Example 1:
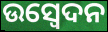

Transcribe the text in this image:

ଉସ୍ୱେଦନ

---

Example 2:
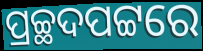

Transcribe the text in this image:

ପ୍ରଚ୍ଛଦପଟ୍ଟରେ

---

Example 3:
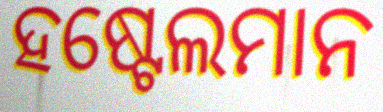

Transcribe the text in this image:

ହଷ୍ଟେଲମାନ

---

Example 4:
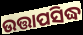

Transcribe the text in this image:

ଉତ୍ତାପସିଦ୍ଧ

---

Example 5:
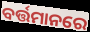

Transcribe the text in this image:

ବର୍ତ୍ତମାନରେ